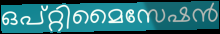
ഒപ്റ്റിമൈസേഷൻ